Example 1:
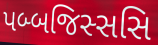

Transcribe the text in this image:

પબ્બજિસ્સસિ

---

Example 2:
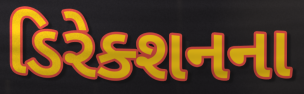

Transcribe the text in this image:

ડિરેક્શનના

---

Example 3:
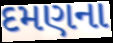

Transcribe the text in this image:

દમણના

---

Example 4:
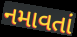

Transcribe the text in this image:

નમાવતાં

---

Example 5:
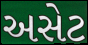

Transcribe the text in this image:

અસેટ